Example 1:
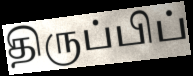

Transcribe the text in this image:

திருப்பிப்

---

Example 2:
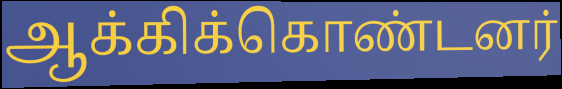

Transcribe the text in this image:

ஆக்கிக்கொண்டனர்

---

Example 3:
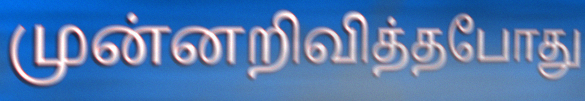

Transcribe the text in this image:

முன்னறிவித்தபோது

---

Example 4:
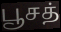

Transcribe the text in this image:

பூசத்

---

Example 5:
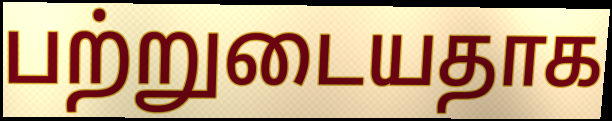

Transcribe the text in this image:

பற்றுடையதாக